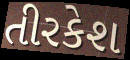
તીરકેશ